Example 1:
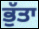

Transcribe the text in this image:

ਭੁੱਤਾ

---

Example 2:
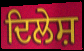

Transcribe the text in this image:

ਦਿਲੇਸ਼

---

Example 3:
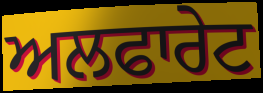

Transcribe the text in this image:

ਅਲਫਾਰੇਟ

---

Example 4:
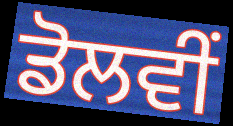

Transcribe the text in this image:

ਡੋਲਵੀਂ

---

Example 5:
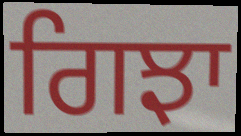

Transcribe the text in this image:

ਗਿਝਾ